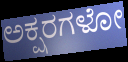
ಅಕ್ಷರಗಳೋ